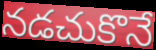
నడచుకొనే